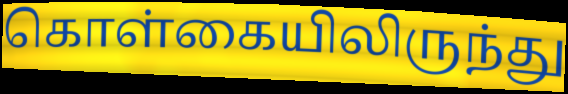
கொள்கையிலிருந்து